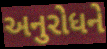
અનુરોધને